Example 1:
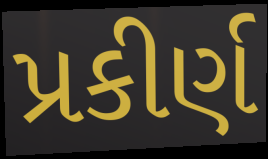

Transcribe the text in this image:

પ્રકીર્ણ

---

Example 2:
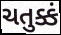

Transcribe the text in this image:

ચતુક્કં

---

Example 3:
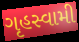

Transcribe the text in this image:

ગૃહસ્વામી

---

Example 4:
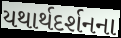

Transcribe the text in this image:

યથાર્થદર્શનના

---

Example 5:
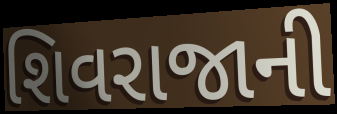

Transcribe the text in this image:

શિવરાજાની